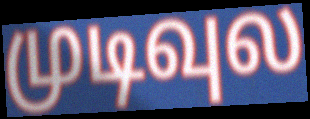
முடிவுல